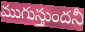
ముగుస్తుందనీ